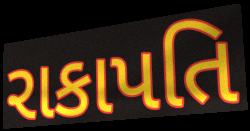
રાકાપતિ